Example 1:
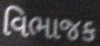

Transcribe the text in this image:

વિભાજક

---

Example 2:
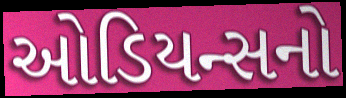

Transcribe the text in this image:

ઓડિયન્સનો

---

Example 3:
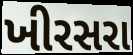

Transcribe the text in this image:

ખીરસરા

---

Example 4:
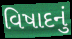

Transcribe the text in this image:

વિષાદનું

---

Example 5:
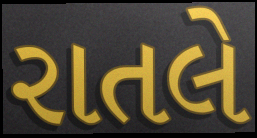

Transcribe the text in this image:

રાતલે